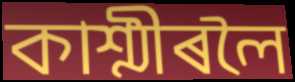
কাশ্মীৰলৈ